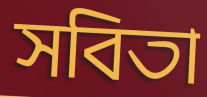
সবিতা